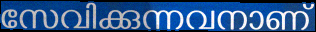
സേവിക്കുന്നവനാണ്